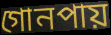
গোনপায়